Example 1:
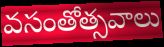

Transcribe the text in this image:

వసంతోత్సవాలు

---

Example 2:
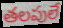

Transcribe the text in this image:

తలపులే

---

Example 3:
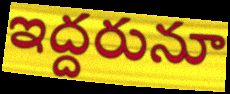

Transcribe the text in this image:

ఇద్దరునూ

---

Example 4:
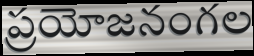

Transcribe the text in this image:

ప్రయోజనంగల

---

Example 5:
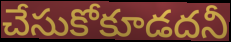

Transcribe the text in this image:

చేసుకోకూడదనీ